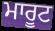
ਮਾਰੂਟ